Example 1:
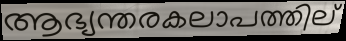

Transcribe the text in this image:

ആഭ്യന്തരകലാപത്തില്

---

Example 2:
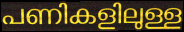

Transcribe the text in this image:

പണികളിലുള്ള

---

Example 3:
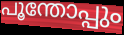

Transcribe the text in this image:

പൂന്തോപ്പും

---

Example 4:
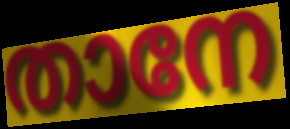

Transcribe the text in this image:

താനേ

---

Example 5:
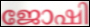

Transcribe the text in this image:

ജോഷി